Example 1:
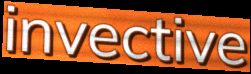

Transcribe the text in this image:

invective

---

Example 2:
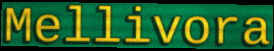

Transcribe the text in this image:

Mellivora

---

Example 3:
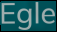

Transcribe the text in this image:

Egle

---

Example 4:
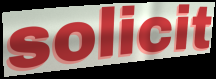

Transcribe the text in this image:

solicit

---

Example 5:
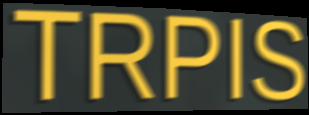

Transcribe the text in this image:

TRPIS